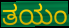
ತಯಂ